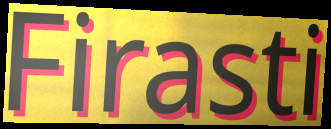
Firasti